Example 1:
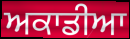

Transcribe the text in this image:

ਅਕਾਡੀਆ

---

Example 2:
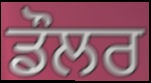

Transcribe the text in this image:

ਡੌਲਰ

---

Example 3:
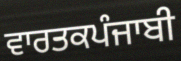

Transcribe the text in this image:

ਵਾਰਤਕਪੰਜਾਬੀ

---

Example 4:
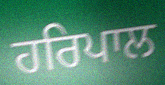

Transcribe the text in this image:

ਹਰਿਪਾਲ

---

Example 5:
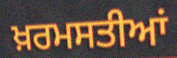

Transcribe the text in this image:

ਖ਼ਰਮਸਤੀਆਂ